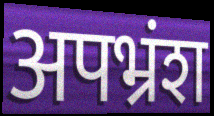
अपभ्रंश